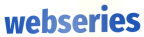
webseries